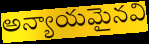
అన్యాయమైనవి